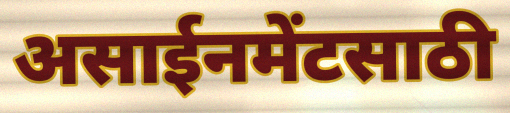
असाईनमेंटसाठी